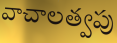
వాచాలత్వపు